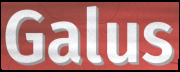
Galus